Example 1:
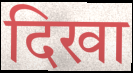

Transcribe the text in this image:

दिखा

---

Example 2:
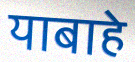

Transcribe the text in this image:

याबाहे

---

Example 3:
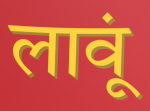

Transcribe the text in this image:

लावूं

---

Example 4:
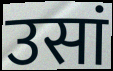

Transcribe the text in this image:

उसां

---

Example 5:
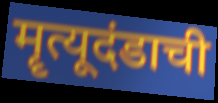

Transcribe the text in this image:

मॄत्यूदंडाची